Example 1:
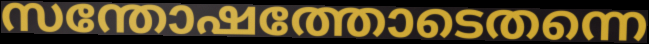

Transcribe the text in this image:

സന്തോഷത്തോടെതന്നെ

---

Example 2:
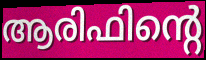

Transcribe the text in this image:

ആരിഫിന്റെ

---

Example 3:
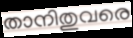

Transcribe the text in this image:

താനിതുവരെ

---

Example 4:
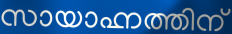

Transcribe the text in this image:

സായാഹ്നത്തിന്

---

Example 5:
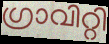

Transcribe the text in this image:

ഗ്രാവിറ്റി